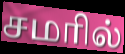
சமரில்